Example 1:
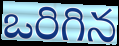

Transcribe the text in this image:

ఒరిగిన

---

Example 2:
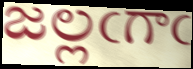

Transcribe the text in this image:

జల్లఁగాఁ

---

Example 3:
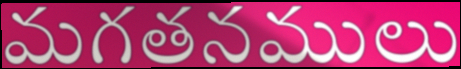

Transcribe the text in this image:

మగతనములు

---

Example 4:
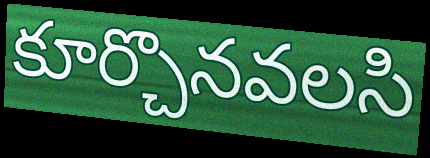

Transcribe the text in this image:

కూర్చొనవలసి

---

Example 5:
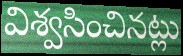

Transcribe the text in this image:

విశ్వసించినట్లు